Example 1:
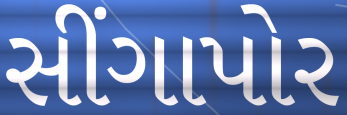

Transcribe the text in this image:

સીંગાપોર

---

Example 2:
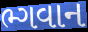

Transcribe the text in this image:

ભ્ગવાન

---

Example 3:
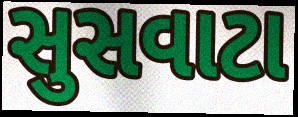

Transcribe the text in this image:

સુસવાટા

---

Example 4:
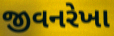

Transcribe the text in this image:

જીવનરેખા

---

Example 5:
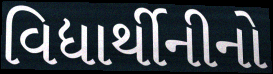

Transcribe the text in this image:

વિદ્યાર્થીનીનો